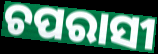
ଚପରାସୀ